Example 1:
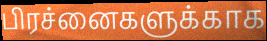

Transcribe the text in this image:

பிரச்னைகளுக்காக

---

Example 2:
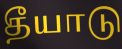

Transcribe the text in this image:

தீயாடு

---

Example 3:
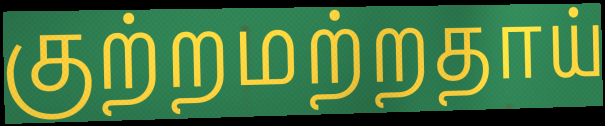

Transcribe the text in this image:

குற்றமற்றதாய்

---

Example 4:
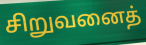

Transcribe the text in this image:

சிறுவனைத்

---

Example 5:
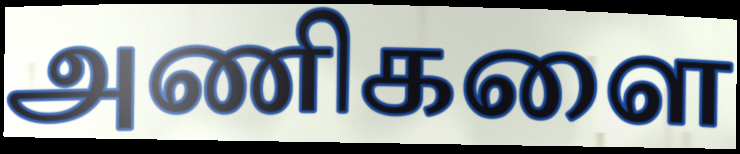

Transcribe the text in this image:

அணிகளை